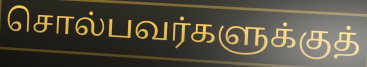
சொல்பவர்களுக்குத்